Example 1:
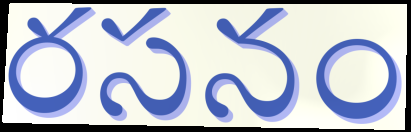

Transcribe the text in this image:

రసనం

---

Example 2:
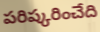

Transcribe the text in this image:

పరిష్కరించేది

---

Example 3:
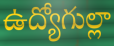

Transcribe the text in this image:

ఉద్యోగుల్లా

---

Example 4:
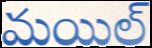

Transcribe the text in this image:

మయిల్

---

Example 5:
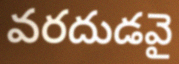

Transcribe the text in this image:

వరదుడవై